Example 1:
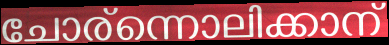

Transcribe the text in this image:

ചോര്ന്നൊലിക്കാന്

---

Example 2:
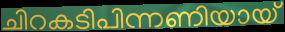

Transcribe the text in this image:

ചിറകടിപിന്നണിയായ്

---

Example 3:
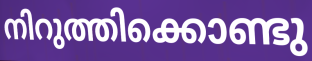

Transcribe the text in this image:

നിറുത്തിക്കൊണ്ടു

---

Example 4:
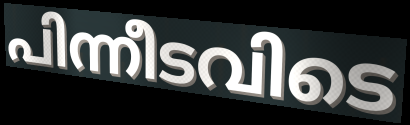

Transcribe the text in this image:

പിന്നീടവിടെ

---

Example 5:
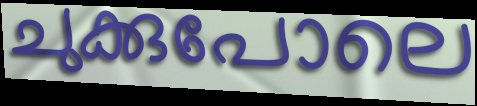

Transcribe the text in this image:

ചുക്കുപോലെ